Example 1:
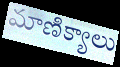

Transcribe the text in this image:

మాణిక్యాలు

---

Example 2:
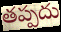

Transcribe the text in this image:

తప్పదు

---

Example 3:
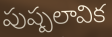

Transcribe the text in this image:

పుష్పలావిక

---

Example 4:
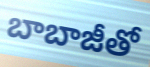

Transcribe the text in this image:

బాబాజీతో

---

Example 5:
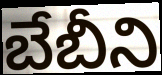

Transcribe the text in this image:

బేబీని